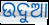
ଉଦୁଆ